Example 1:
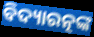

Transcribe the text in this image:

ବିଦ୍ୟାରତ୍ନଙ୍କ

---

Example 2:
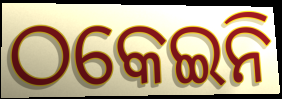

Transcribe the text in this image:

ଠକେଇନି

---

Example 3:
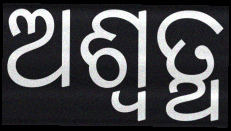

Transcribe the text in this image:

ଅଶ୍ଵତ୍ଥ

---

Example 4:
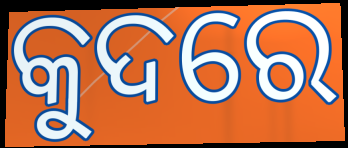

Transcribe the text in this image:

କୁଦରେ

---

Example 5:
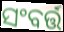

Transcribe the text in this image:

ସଂବର୍ତ୍ତ